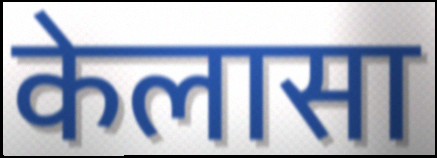
केलासा